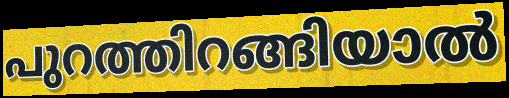
പുറത്തിറങ്ങിയാൽ